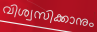
വിശ്വസിക്കാനും